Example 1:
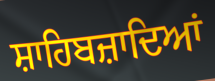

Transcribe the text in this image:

ਸ਼ਾਹਿਬਜ਼ਾਦਿਆਂ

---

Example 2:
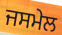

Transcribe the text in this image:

ਜਸਮੇਲ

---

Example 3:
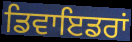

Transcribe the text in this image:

ਡਿਵਾਇਡਰਾਂ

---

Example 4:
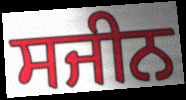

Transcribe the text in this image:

ਸਜੀਨ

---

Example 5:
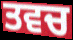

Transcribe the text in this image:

ਤਵਚ